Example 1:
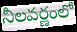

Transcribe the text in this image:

నీలవర్ణంలో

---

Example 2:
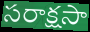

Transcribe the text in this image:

సరాక్షసా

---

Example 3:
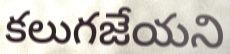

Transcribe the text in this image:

కలుగజేయని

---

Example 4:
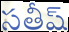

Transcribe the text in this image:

సతీష్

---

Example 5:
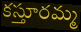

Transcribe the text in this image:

కస్తూరమ్మ